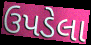
ઉપડેલા